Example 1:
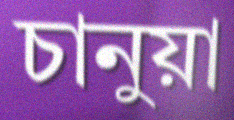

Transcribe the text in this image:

চানুয়া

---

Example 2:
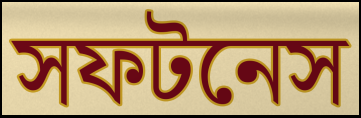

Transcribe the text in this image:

সফটনেস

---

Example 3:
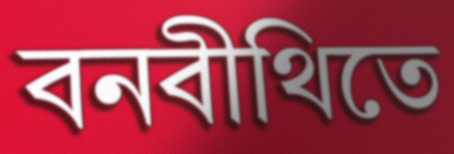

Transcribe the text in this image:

বনবীথিতে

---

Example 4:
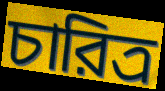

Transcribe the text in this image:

চারিত্র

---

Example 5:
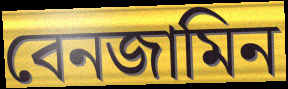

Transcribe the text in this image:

বেনজামিন